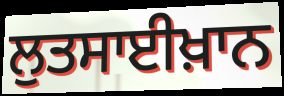
ਲੁਤਸਾਈਖ਼ਾਨ